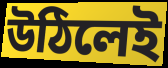
উঠিলেই